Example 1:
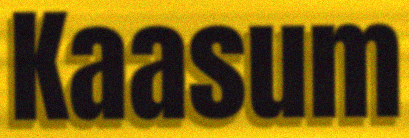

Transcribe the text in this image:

Kaasum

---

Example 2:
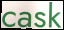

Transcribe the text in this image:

cask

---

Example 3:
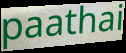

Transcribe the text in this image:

paathai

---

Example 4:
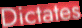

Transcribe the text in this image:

Dictates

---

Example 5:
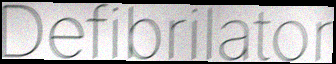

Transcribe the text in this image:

Defibrilator